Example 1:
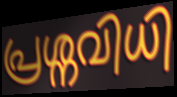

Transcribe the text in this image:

പ്രശ്നവിധി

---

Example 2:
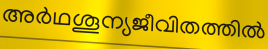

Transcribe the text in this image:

അർഥശൂന്യജീവിതത്തിൽ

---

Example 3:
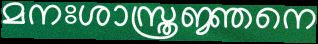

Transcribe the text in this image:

മനഃശാസ്ത്രജ്ഞനെ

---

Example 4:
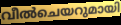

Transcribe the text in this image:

വീൽചെയറുമായി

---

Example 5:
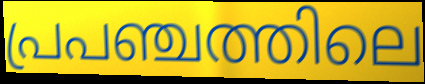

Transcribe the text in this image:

പ്രപഞ്ചത്തിലെ